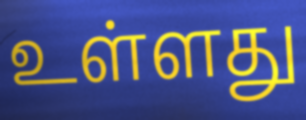
உள்ளது